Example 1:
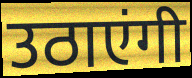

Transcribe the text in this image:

उठाएंगी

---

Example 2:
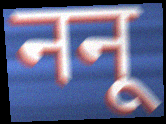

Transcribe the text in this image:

ननू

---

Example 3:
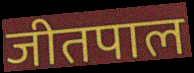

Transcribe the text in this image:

जीतपाल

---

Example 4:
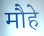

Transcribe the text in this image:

मौहे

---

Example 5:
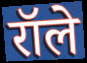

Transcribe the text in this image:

रॉले